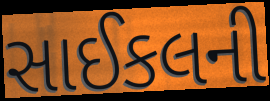
સાઈકલની